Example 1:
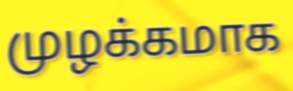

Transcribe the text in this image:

முழக்கமாக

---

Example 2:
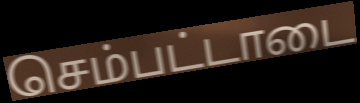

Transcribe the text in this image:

செம்பட்டாடை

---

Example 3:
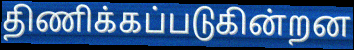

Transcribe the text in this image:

திணிக்கப்படுகின்றன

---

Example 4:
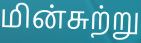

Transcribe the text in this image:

மின்சுற்று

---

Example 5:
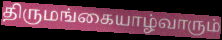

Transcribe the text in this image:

திருமங்கையாழ்வாரும்